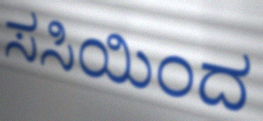
ಸಸಿಯಿಂದ